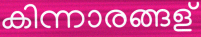
കിന്നാരങ്ങള്